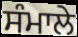
ਸੰਮਾਲੇ